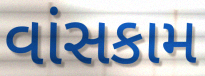
વાંસકામ